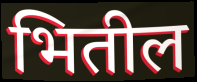
भितील